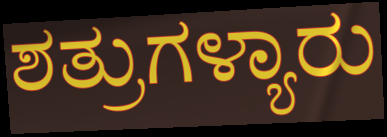
ಶತ್ರುಗಳ್ಯಾರು